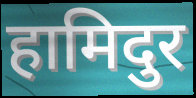
हामिदुर